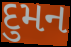
દુમન